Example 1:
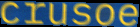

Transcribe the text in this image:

crusoe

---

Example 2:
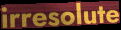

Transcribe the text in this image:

irresolute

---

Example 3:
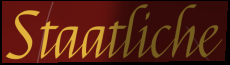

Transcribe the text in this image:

Staatliche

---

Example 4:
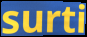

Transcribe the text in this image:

surti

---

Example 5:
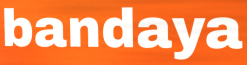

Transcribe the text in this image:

bandaya